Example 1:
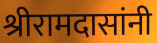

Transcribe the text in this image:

श्रीरामदासांनी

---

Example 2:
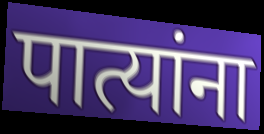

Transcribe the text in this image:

पात्यांना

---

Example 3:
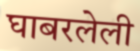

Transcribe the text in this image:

घाबरलेली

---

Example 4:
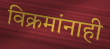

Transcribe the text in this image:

विक्रमांनाही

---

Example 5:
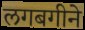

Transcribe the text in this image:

लगबगीने